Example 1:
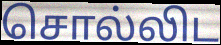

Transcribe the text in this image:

சொல்லிட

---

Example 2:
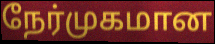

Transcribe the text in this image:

நேர்முகமான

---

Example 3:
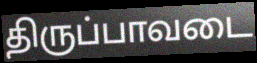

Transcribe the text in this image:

திருப்பாவடை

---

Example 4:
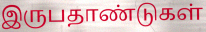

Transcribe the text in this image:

இருபதாண்டுகள்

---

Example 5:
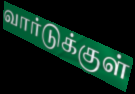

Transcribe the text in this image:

வார்டுக்குள்